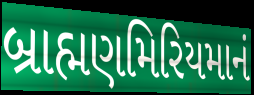
બ્રાહ્મણમિરિયમાનં